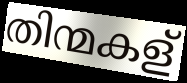
തിന്മകള്